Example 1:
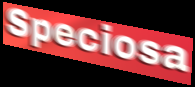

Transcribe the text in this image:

Speciosa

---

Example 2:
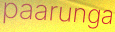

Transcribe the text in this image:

paarunga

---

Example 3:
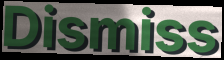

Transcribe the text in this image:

Dismiss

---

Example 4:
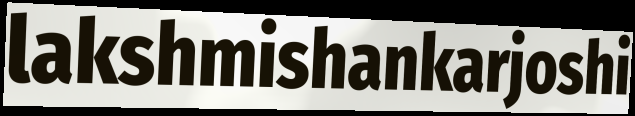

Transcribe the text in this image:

lakshmishankarjoshi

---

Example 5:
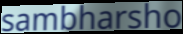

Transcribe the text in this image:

sambharsho